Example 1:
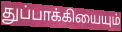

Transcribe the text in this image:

துப்பாக்கியையும்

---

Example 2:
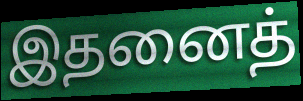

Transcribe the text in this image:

இதனைத்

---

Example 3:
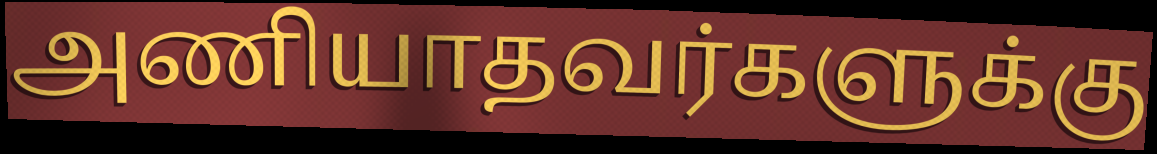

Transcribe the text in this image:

அணியாதவர்களுக்கு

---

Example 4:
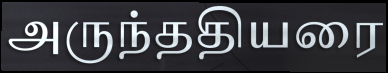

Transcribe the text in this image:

அருந்ததியரை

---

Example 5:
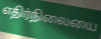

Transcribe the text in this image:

எதிர்நிலையை